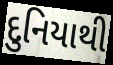
દુનિયાથી